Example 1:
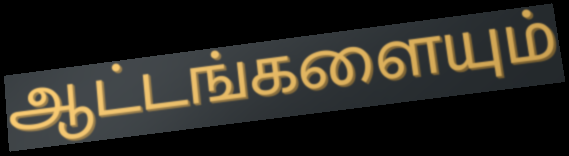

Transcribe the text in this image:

ஆட்டங்களையும்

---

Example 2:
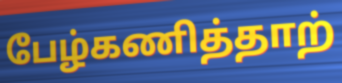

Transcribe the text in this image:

பேழ்கணித்தாற்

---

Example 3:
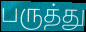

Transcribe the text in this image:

பருத்து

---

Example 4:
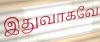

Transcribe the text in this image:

இதுவாகவே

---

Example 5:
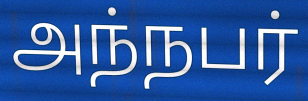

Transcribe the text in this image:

அந்நபர்